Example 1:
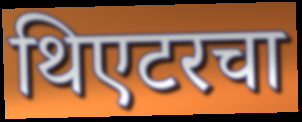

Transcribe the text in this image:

थिएटरचा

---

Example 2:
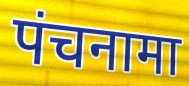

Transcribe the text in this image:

पंचनामा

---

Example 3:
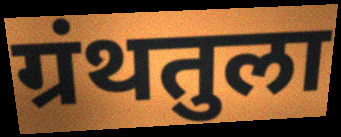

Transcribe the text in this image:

ग्रंथतुला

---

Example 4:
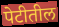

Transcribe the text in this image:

पेटीतील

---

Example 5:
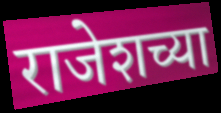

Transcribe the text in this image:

राजेशच्या